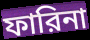
ফারিনা